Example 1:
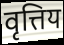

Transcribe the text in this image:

वृत्तिय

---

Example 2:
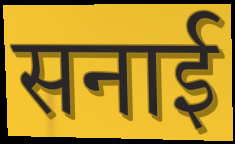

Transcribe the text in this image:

सनाई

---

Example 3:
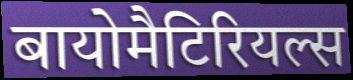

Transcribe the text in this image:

बायोमैटिरियल्स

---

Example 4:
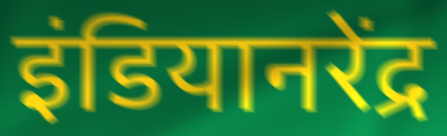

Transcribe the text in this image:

इंडियानरेंद्र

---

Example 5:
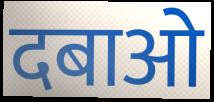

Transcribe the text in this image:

दबाओ